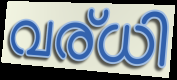
വര്ധി